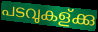
പടവുകള്ക്കു